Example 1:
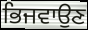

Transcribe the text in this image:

ਭਿਜਵਾਉਣ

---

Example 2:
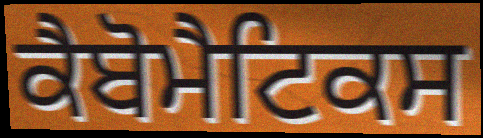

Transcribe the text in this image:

ਕੈਬੋਮੈਟਿਕਸ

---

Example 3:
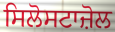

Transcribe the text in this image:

ਸਿਲੋਸਟਾਜ਼ੋਲ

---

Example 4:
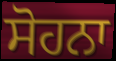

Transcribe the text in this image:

ਸੋਹਨਾ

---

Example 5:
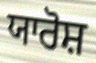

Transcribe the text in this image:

ਯਾਰੋਸ਼